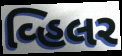
વ્હિલર